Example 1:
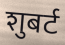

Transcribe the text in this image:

शुबर्ट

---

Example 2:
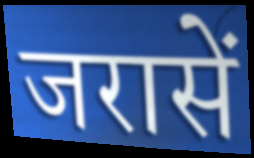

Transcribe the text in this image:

जरासें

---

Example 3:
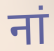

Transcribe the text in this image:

नां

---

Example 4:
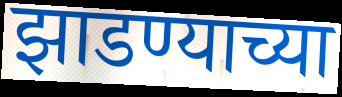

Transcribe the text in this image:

झाडण्याच्या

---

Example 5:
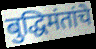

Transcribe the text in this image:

बुद्धिमंतांचे